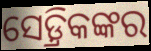
ସେଡ଼୍ରିକଙ୍କର